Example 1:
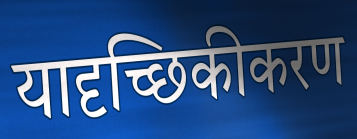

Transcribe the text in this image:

यादृच्छिकीकरण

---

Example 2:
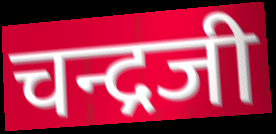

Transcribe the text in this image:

चन्द्रजी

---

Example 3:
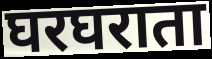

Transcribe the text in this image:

घरघराता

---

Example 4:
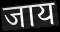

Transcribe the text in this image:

जाय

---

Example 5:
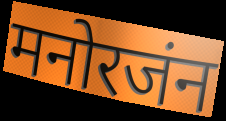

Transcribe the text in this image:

मनोरजंन